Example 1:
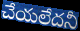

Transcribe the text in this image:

చేయలేదనీ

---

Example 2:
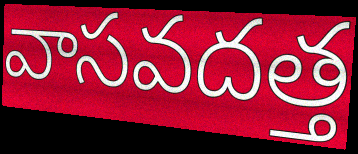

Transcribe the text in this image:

వాసవదత్త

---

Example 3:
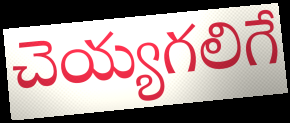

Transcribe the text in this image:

చెయ్యగలిగే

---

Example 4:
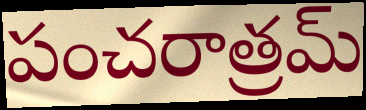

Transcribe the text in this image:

పంచరాత్రమ్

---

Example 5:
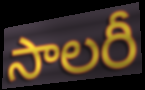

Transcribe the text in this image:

సాలరీ